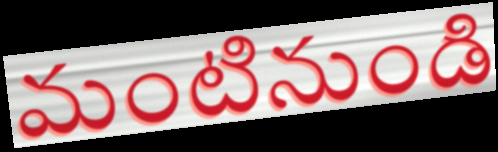
మంటినుండి